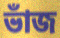
ভাঁজ